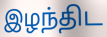
இழந்திட